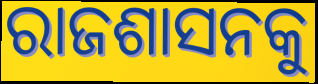
ରାଜଶାସନକୁ